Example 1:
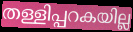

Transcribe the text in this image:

തള്ളിപ്പറകയില്ല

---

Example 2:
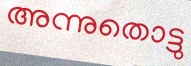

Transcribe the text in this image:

അന്നുതൊട്ടു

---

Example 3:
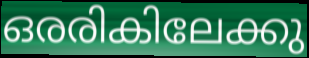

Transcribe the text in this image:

ഒരരികിലേക്കു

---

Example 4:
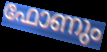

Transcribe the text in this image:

ഫോണും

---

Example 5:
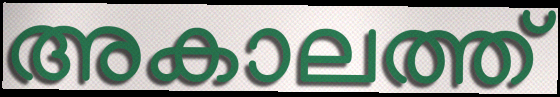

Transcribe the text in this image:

അകാലത്ത്